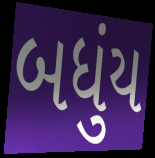
બધુંય